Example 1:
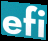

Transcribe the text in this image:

efi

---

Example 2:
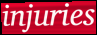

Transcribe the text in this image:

injuries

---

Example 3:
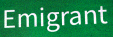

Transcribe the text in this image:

Emigrant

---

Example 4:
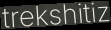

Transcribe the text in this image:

trekshitiz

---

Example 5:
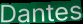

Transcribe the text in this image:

Dantes